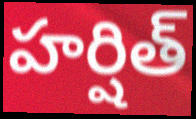
హర్షిత్